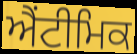
ਐਂਟੀਮਿਕ